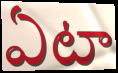
ఏటా